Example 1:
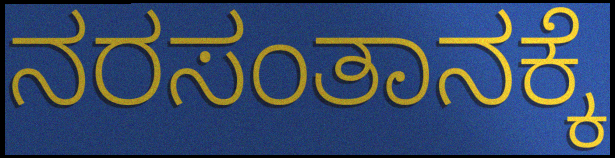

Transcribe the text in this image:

ನರಸಂತಾನಕ್ಕೆ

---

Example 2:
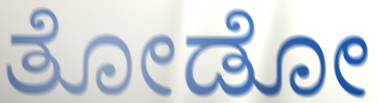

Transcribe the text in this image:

ತೋಡೋ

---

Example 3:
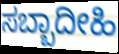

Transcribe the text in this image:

ಸಬ್ಬಾದೀಹಿ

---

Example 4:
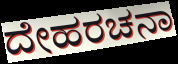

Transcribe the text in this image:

ದೇಹರಚನಾ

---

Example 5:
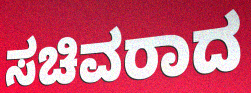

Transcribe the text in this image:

ಸಚಿವರಾದ